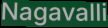
Nagavalli